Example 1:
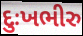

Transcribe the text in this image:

દુઃખભીરુ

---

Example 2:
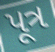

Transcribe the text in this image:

પૂત્ર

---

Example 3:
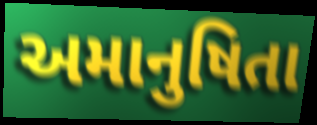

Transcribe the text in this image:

અમાનુષિતા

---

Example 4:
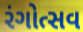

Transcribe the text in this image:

રંગોત્સવ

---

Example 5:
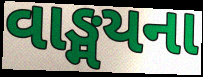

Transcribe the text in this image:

વાઙ્મયના